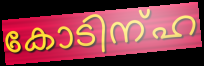
കോടിന്ഹ